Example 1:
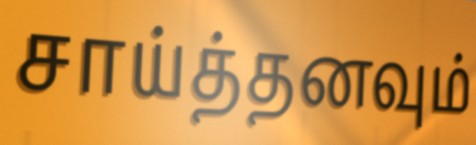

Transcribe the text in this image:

சாய்த்தனவும்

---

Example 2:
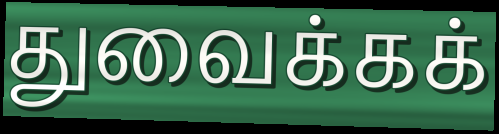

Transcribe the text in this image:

துவைக்கக்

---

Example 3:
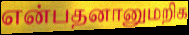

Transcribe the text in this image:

என்பதனானுமறிக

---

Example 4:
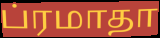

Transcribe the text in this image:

ப்ரமாதா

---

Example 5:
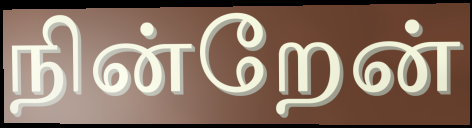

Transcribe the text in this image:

நின்றேன்